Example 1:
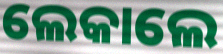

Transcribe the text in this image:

ଲେକାଲେ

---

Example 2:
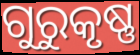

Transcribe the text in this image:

ଗୁରୁକୃଷ୍ଣ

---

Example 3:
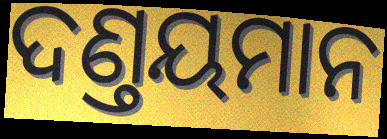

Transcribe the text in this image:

ଦଣ୍ତୟମାନ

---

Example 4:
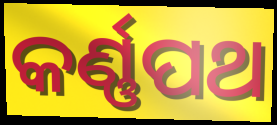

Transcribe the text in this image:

କର୍ଣ୍ଣପଥ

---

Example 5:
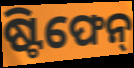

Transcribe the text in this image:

ଷ୍ଟିଫେନ୍